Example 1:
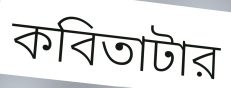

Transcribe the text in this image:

কবিতাটার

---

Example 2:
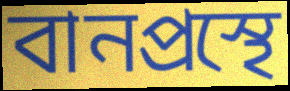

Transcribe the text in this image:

বানপ্রস্থে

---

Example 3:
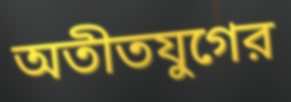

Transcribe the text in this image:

অতীতযুগের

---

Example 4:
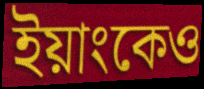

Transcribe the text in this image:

ইয়াংকেও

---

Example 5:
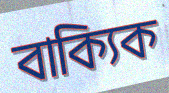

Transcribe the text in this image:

বাক্যিক